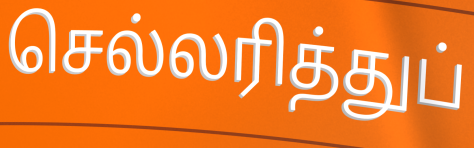
செல்லரித்துப்